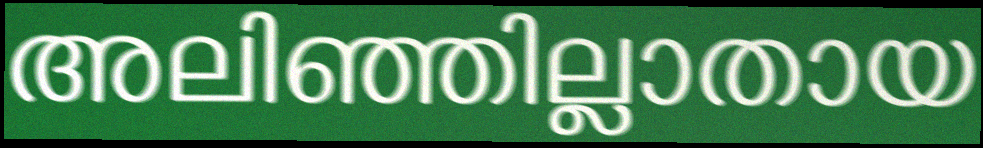
അലിഞ്ഞില്ലാതായ